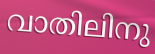
വാതിലിനു